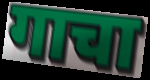
गाचा